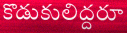
కొడుకులిద్దరూ